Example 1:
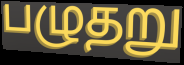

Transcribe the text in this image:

பழுதறு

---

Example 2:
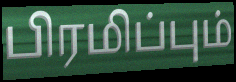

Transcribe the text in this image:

பிரமிப்பும்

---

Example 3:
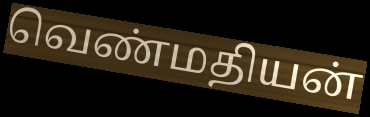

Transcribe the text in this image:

வெண்மதியன்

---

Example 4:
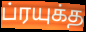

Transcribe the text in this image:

ப்ரயுக்த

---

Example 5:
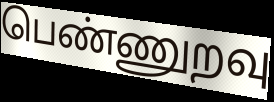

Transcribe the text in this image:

பெண்ணுறவு